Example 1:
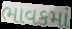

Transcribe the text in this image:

ભાવકમાં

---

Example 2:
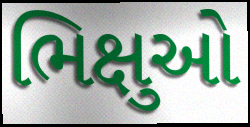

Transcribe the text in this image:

ભિક્ષુઓ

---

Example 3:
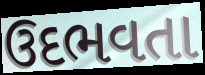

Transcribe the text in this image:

ઉદભવતા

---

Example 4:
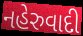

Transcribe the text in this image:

નહેરુવાદી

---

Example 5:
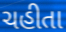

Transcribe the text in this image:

ચહીતા